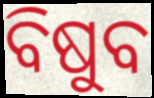
ବିଷୁବ